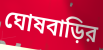
ঘোষবাড়ির